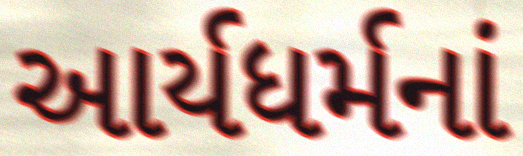
આર્યધર્મનાં